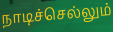
நாடிச்செல்லும்